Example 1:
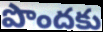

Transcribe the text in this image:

పొందకు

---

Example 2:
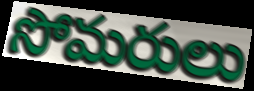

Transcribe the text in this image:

సోమరులు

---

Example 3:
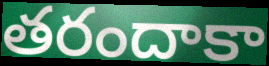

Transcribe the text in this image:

తరందాకా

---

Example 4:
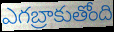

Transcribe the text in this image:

ఎగబ్రాకుతోంది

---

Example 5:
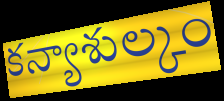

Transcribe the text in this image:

కన్యాశుల్కం